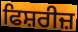
ਫਿਸ਼ਰੀਜ਼